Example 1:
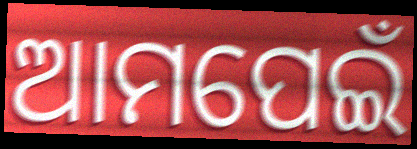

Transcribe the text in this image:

ଆମପେଇଁ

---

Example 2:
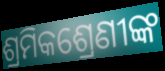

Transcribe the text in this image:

ଶ୍ରମିକଶ୍ରେଣୀଙ୍କ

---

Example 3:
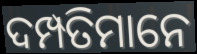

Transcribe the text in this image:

ଦମ୍ପତିମାନେ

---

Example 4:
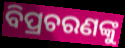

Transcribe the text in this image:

ବିପ୍ରଚରଣଙ୍କୁ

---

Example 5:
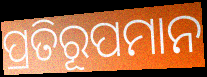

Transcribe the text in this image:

ପ୍ରତିରୂପମାନ